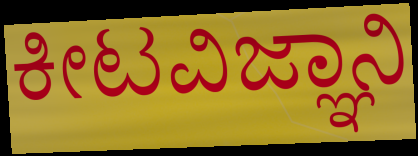
ಕೀಟವಿಜ್ಞಾನಿ